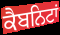
ਕੈਬਨਿਟਾਂ